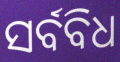
ସର୍ବବିଧ